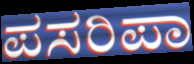
ಪಸರಿಪಾ